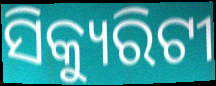
ସିକ୍ୟୁରିଟୀ